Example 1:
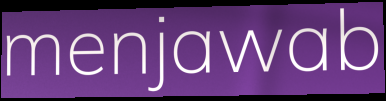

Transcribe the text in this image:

menjawab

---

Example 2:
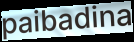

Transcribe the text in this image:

paibadina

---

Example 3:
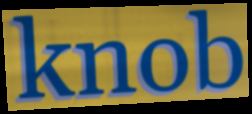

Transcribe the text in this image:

knob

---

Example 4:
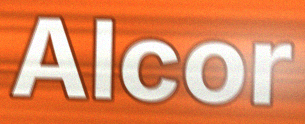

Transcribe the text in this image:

Alcor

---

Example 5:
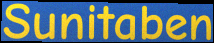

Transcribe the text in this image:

Sunitaben